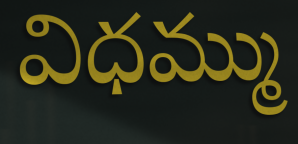
విధమ్ము